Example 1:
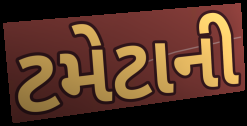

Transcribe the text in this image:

ટમેટાની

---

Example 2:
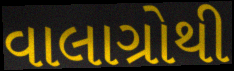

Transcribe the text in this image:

વાલાગ્રોથી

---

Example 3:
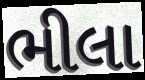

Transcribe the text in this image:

ભીલા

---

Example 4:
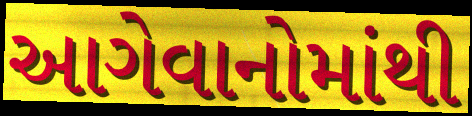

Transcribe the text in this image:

આગેવાનોમાંથી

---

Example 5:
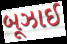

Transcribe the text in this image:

બૂઝાઈ